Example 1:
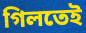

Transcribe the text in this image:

গিলতেই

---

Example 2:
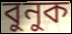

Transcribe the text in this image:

বুনুক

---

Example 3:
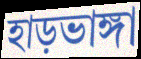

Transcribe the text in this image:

হাড়ভাঙ্গা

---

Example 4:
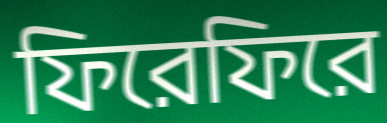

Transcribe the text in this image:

ফিরেফিরে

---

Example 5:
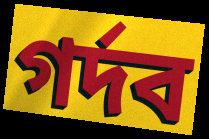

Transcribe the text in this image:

গর্দব